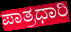
ಪಾತ್ರಧಾರಿ